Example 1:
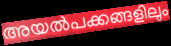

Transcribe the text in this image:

അയൽപക്കങ്ങളിലും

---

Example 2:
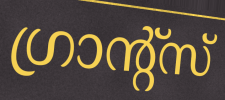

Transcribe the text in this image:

ഗ്രാന്റ്സ്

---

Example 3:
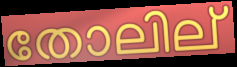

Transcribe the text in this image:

തോലില്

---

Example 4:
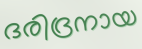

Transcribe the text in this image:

ദരിദ്രനായ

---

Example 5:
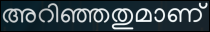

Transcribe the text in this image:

അറിഞ്ഞതുമാണ്